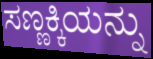
ಸಣ್ಣಕ್ಕಿಯನ್ನು